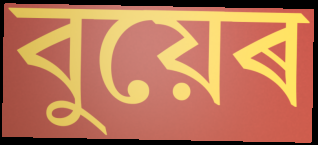
বুয়েৰ